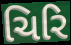
ચિરિ